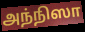
அந்நிஸா